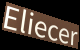
Eliecer